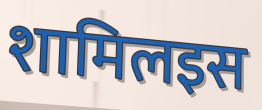
शामिलइस